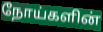
நோய்களின்